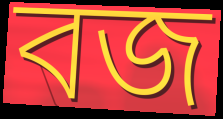
বজ